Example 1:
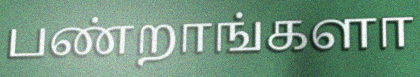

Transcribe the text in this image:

பண்றாங்களா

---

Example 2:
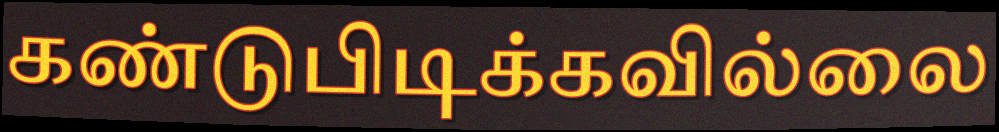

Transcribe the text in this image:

கண்டுபிடிக்கவில்லை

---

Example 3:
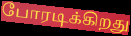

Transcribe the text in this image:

போரடிக்கிறது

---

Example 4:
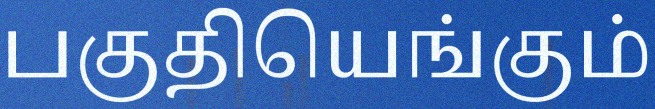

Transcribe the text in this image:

பகுதியெங்கும்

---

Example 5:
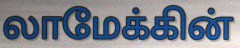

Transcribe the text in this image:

லாமேக்கின்